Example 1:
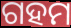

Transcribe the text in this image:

ଗହମ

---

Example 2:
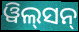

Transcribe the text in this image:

ୱିଲ୍‌ସନ୍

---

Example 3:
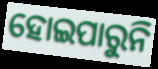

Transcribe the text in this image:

ହୋଇପାରୁନି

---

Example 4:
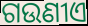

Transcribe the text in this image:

ଗଉଣୀଏ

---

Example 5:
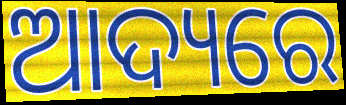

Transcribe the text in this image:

ଆଦ୍ୟରେ